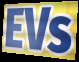
EVs